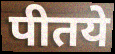
पीतये